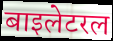
बाइलेटरल